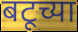
बटूच्या